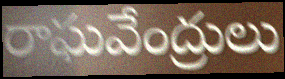
రాఘవేంద్రులు